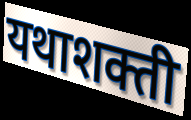
यथाशक्‍ती